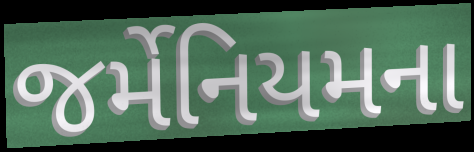
જર્મેનિયમના